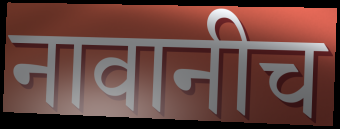
नावानीच